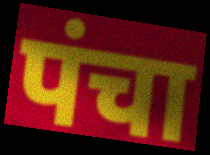
पंचा